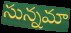
సున్నమా